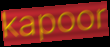
kapoor